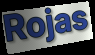
Rojas